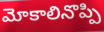
మోకాలినొప్పి